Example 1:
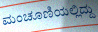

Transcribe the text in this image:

ಮಂಚೂಣಿಯಲ್ಲಿದ್ದು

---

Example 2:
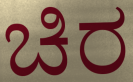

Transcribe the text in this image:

ಚಿರ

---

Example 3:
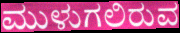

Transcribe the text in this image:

ಮುಳುಗಲಿರುವ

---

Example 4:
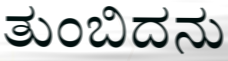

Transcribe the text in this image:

ತುಂಬಿದನು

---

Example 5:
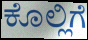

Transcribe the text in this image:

ಕೊಲ್ಲಿಗೆ